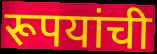
रूपयांची